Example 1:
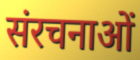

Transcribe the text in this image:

संरचनाओं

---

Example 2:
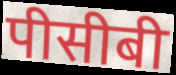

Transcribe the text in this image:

पीसीबी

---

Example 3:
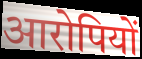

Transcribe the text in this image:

आरोपियों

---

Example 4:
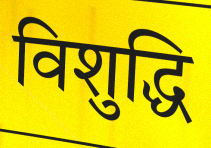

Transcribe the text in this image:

विशुद्धि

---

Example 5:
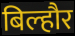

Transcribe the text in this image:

बिल्हौर